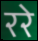
ररे